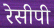
रेसीपी